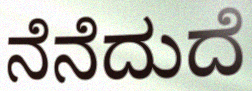
ನೆನೆದುದೆ